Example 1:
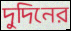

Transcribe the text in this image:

দুদিনের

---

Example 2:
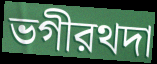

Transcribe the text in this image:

ভগীরথদা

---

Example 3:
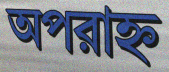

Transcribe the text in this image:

অপরাহ্ন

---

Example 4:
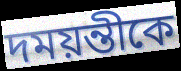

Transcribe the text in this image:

দময়ন্তীকে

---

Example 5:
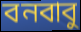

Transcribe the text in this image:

বনবাবু